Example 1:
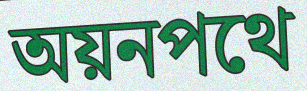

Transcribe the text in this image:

অয়নপথে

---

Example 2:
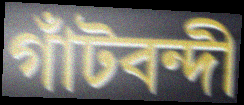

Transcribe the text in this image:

গাঁটবন্দী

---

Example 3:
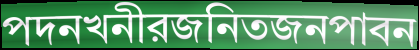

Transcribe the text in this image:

পদনখনীরজনিতজনপাবন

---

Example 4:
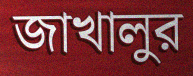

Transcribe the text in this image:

জাখালুর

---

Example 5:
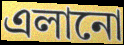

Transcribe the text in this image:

এলানো